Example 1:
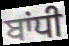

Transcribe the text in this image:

ਬਾਂਧੀ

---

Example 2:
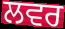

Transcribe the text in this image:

ਲਵਰ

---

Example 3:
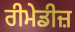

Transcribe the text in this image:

ਰੀਮੇਡੀਜ਼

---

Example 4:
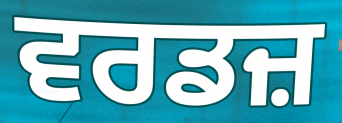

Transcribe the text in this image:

ਵਰਡਜ਼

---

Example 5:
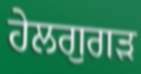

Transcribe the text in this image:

ਹੇਲਗੁਗੜ